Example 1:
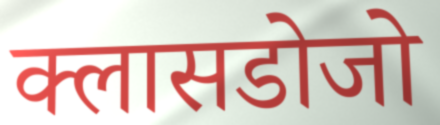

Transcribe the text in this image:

क्लासडोजो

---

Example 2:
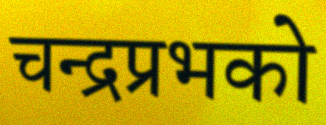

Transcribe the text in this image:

चन्द्रप्रभको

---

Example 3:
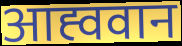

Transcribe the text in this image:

आह्ववान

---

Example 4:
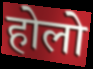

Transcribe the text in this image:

होलो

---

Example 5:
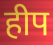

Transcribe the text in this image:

हीप